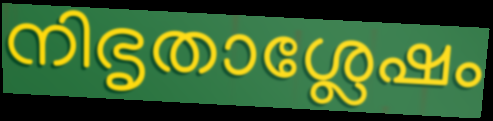
നിഭൃതാശ്ലേഷം